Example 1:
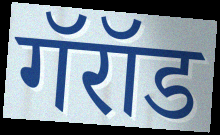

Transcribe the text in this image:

गॅरॉड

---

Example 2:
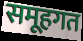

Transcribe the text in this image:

समूहगत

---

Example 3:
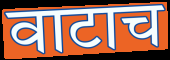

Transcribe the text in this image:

वाटाच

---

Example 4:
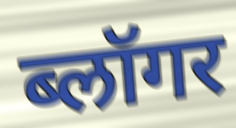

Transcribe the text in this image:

ब्लॉगर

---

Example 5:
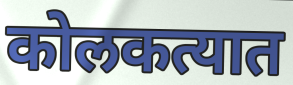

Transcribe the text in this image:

कोलकत्यात